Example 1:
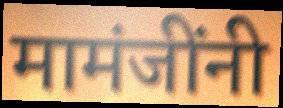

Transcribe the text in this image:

मामंजींनी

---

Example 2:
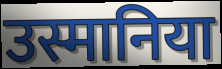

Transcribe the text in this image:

उस्मानिया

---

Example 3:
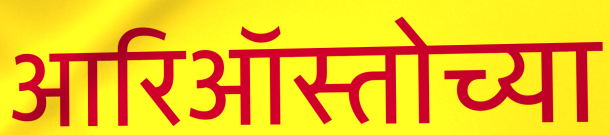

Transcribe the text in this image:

आरिऑस्तोच्या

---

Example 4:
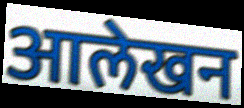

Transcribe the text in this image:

आलेखन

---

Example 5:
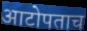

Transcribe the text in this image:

आटोपताच